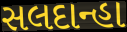
સલદાન્હા